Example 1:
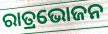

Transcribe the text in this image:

ରାତ୍ରଭୋଜନ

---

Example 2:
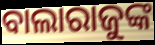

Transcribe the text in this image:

ବାଲାରାଜୁଙ୍କ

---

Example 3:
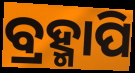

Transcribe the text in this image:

ବ୍ରହ୍ମାପି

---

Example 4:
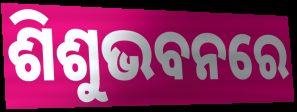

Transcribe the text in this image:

ଶିଶୁଭବନରେ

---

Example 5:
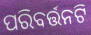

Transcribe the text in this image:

ପରିବର୍ତ୍ତନଟି